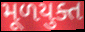
મૂળયુક્ત